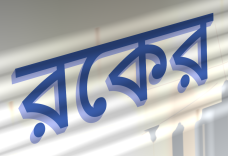
রকের